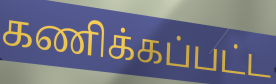
கணிக்கப்பட்ட